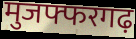
मुजफ्फरगढ़